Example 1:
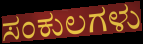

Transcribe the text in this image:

ಸಂಕುಲಗಳು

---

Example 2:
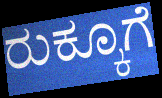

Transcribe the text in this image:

ರುಕ್ಕೂಗೆ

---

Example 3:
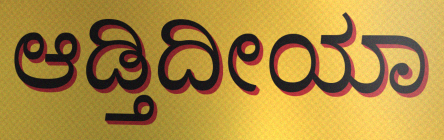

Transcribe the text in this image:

ಆಡ್ತಿದೀಯಾ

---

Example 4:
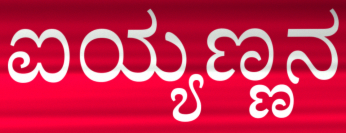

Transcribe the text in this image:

ಐಯ್ಯಣ್ಣನ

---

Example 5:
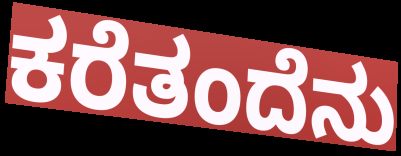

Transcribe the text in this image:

ಕರೆತಂದೆನು